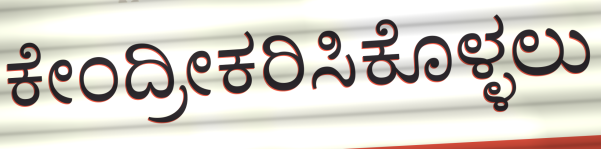
ಕೇಂದ್ರೀಕರಿಸಿಕೊಳ್ಳಲು